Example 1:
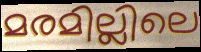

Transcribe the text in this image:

മരമില്ലിലെ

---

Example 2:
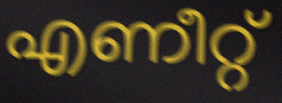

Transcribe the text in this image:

എണീറ്റ്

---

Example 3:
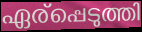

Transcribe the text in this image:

ഏര്പ്പെടുത്തി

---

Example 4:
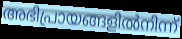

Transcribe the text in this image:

അഭിപ്രായങ്ങളിൽനിന്ന്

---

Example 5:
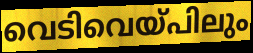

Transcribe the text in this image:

വെടിവെയ്പിലും